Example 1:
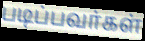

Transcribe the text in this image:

படிப்பவர்கள்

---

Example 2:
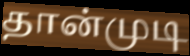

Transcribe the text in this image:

தான்முடி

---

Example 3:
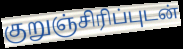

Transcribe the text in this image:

குறுஞ்சிரிப்புடன்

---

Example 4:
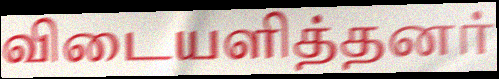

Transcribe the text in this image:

விடையளித்தனர்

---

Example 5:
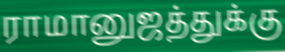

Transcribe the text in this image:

ராமானுஜத்துக்கு